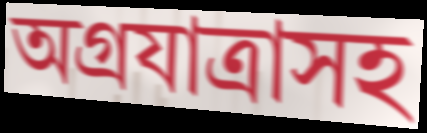
অগ্রযাত্রাসহ